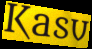
Kasu